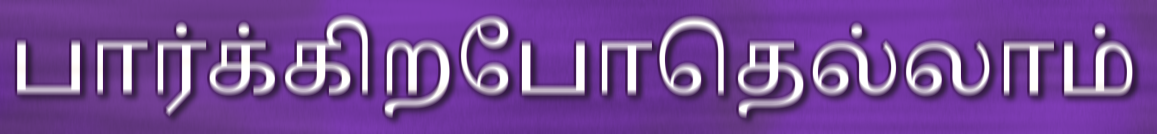
பார்க்கிறபோதெல்லாம்